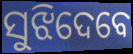
ସୁଝିଦେବେ